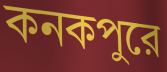
কনকপুরে